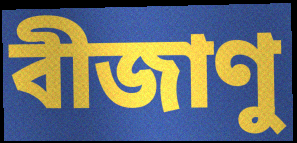
বীজাণু